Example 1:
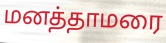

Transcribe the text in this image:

மனத்தாமரை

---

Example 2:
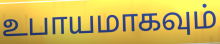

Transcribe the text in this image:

உபாயமாகவும்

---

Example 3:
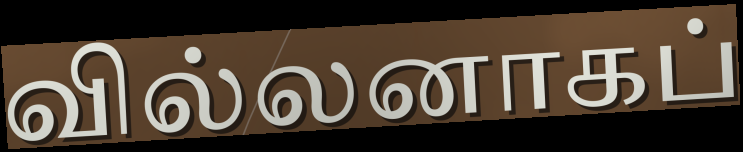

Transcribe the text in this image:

வில்லனாகப்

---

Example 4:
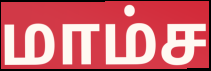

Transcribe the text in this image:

மாம்ச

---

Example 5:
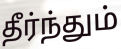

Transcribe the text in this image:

தீர்ந்தும்